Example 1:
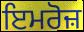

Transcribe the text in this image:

ਇਮਰੋਜ਼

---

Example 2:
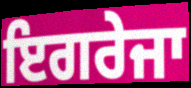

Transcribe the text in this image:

ਇਗਰੇਜਾ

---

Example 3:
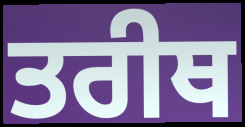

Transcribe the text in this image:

ਤਰੀਥ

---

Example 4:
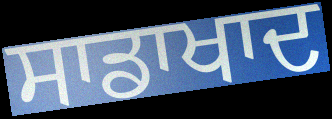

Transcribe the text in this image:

ਸਾਡਾਖਾਦ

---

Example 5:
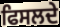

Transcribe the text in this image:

ਫਿਸਲਦੇ